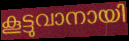
കൂട്ടുവാനായി